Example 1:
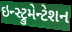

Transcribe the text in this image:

ઇન્સ્ટ્રુમેન્ટેશન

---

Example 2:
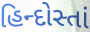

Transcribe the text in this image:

હિન્દોસ્તાં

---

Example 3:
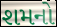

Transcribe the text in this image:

શમનો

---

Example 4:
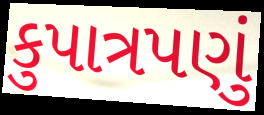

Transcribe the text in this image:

કુપાત્રપણું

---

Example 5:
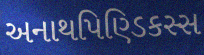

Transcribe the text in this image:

અનાથપિણ્ડિકસ્સ